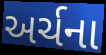
અર્ચના